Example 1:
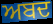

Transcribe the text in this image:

ਅਬਦ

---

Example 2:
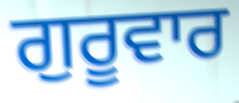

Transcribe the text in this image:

ਗੁਰੂਵਾਰ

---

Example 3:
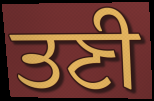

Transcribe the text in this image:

ਤਣੀ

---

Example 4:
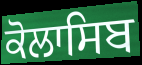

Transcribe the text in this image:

ਕੋਲਾਸਿਬ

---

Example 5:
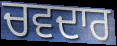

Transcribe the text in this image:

ਚਵਦਾਰ